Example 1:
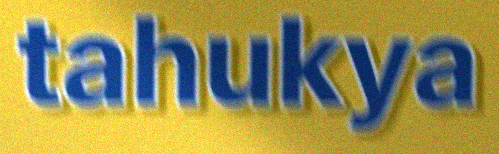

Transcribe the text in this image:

tahukya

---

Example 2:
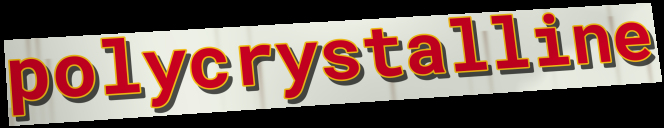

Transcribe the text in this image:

polycrystalline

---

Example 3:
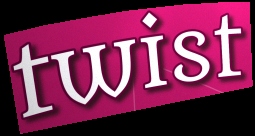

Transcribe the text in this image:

twist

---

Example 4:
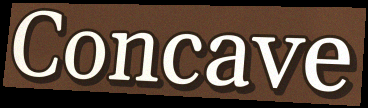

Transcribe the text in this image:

Concave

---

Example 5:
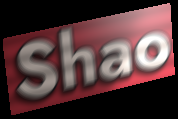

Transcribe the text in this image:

Shao